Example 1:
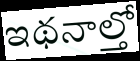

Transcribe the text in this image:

ఇథనాల్తో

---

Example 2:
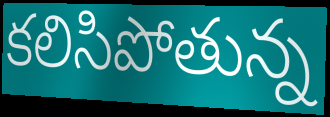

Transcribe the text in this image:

కలిసిపోతున్న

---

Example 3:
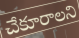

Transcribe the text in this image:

చేకూరాలని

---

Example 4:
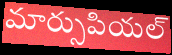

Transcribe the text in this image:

మార్సుపియల్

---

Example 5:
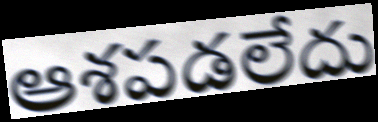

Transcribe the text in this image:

ఆశపడలేదు